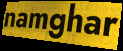
namghar